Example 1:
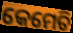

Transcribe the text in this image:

କେମେତି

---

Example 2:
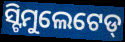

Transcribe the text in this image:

ସ୍ଟିମୁଲେଟେଡ୍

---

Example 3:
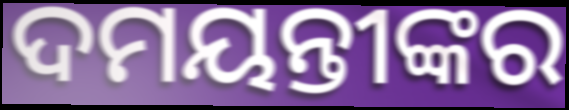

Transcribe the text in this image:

ଦମୟନ୍ତୀଙ୍କର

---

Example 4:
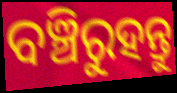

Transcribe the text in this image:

ବଞ୍ଚିରୁହନ୍ତୁ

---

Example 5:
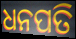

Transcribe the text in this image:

ଧନପତି